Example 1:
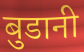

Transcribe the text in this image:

बुडानी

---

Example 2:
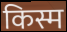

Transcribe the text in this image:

किस्म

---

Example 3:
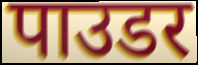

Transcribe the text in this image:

पाउडर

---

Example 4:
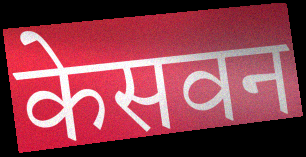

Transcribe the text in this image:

केसवन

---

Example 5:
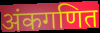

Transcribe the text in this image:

अंकगणित